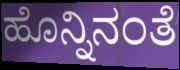
ಹೊನ್ನಿನಂತೆ